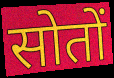
सोतों